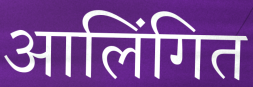
आलिंगित